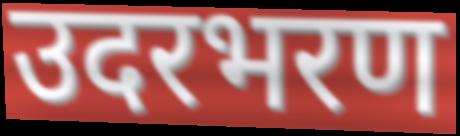
उदरभरण